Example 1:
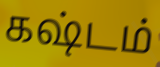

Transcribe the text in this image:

கஷ்டம்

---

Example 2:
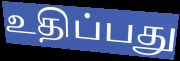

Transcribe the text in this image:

உதிப்பது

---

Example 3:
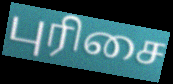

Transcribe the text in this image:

புரிசை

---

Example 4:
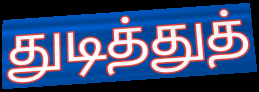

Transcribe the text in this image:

துடித்துத்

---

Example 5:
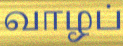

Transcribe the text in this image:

வாழப்